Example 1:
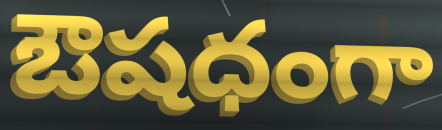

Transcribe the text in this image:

ఔషధంగా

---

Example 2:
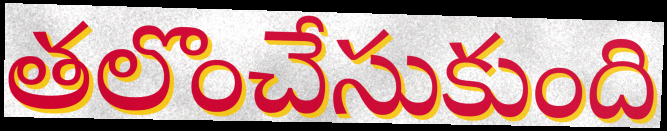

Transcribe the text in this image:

తలొంచేసుకుంది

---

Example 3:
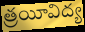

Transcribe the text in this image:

త్రయీవిద్య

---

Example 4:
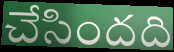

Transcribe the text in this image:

చేసిందది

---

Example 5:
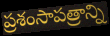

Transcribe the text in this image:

ప్రశంసాపత్రాన్ని